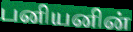
பனியனின்